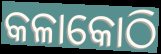
କଳାକୋଠି